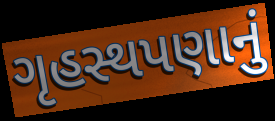
ગૃહસ્થપણાનું